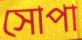
সোপা